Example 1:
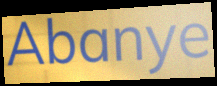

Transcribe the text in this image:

Abanye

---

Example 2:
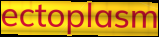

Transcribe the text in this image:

ectoplasm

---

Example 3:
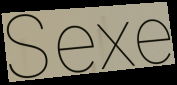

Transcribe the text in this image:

Sexe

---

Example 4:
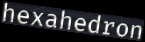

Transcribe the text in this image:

hexahedron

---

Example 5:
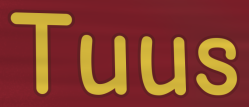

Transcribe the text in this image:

Tuus